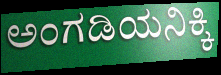
ಅಂಗಡಿಯನಿಕ್ಕಿ